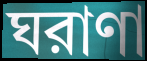
ঘরাণা